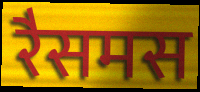
रैसमस